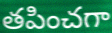
తపించగా